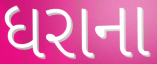
ધરાના